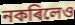
নকৰিলেও